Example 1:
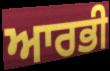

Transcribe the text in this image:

ਆਰਭੀ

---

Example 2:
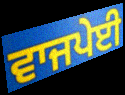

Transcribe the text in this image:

ਵਾਜਪੇਈ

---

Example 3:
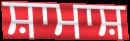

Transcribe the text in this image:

ਸ਼ਾਮਾਸ਼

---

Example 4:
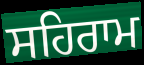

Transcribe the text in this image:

ਸਹਿਰਾਮ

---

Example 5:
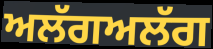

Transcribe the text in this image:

ਅਲੱਗਅਲੱਗ